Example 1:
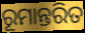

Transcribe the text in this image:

ରୂମାନ୍ତରିତ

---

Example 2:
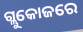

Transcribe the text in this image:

ଗ୍ଲୁକୋଜରେ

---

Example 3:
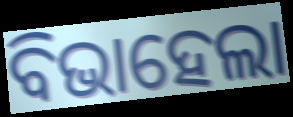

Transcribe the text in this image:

ବିଭାହେଲା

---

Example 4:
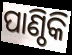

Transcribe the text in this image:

ପାଣ୍ଠିକି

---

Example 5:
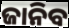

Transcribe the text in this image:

ଜାନିବ